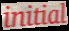
initial